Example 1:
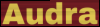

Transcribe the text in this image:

Audra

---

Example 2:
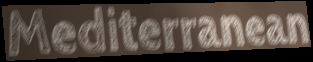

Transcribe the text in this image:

Mediterranean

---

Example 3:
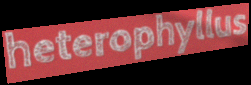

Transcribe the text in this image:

heterophyllus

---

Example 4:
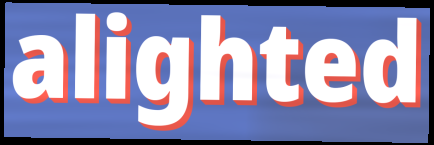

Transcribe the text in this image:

alighted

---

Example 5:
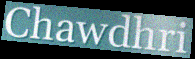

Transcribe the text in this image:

Chawdhri